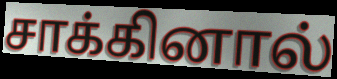
சாக்கினால்